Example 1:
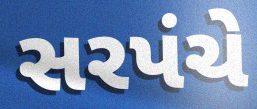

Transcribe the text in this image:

સરપંચે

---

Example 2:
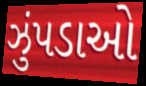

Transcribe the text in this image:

ઝુંપડાઓ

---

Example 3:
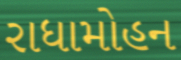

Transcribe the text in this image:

રાધામોહન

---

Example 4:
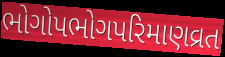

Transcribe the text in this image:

ભોગોપભોગપરિમાણવ્રત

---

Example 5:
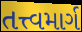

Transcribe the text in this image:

તત્ત્વમાર્ગ